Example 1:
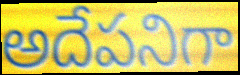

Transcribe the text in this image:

అదేపనిగా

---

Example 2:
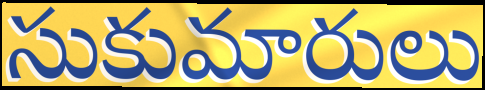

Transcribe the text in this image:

సుకుమారులు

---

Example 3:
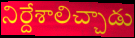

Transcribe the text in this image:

నిర్దేశాలిచ్చాడు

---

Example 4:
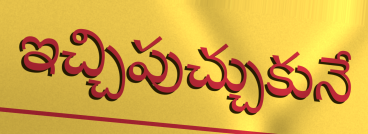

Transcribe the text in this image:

ఇచ్చిపుచ్చుకునే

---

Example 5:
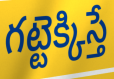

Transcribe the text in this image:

గట్టెక్కిస్తే